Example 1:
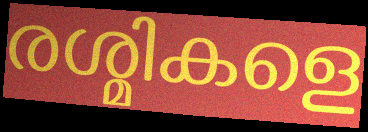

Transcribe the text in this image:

രശ്മികളെ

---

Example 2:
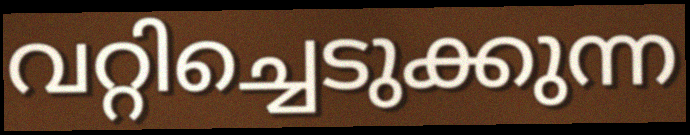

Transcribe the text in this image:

വറ്റിച്ചെടുക്കുന്ന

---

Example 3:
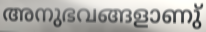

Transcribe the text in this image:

അനുഭവങ്ങളാണു്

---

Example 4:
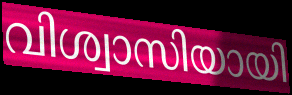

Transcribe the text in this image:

വിശ്വാസിയായി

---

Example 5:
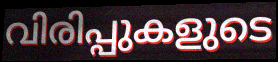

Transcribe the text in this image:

വിരിപ്പുകളുടെ